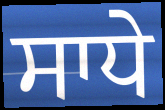
ਸਾਧੇ